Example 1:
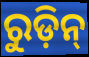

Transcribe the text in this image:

ରୁଡ଼ିନ୍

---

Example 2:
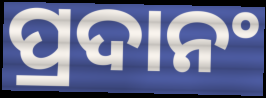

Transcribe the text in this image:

ପ୍ରଦାନଂ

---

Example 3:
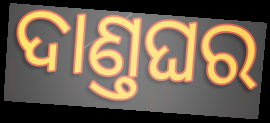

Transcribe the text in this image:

ଦାଣ୍ତଘର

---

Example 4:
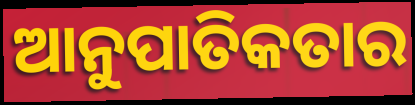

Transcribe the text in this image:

ଆନୁପାତିକତାର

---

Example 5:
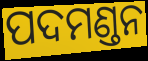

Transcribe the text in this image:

ପଦମଣ୍ଡନ